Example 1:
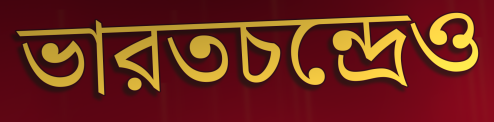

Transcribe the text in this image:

ভারতচন্দ্রেও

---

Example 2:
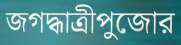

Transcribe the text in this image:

জগদ্ধাত্রীপুজোর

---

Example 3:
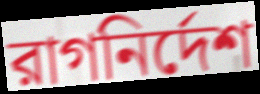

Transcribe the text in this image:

রাগনির্দেশ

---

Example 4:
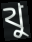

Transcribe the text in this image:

থু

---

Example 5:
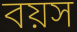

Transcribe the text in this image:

বয়স